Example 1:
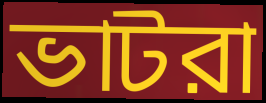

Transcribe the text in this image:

ভাটরা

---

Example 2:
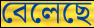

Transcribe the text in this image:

বেলেছে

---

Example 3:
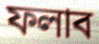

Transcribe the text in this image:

ফলাব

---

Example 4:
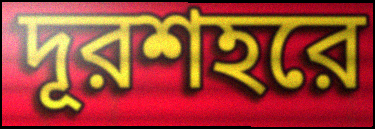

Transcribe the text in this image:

দূরশহরে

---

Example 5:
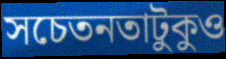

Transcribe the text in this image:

সচেতনতাটুকুও